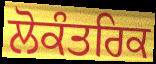
ਲੋਕੰਤਰਿਕ